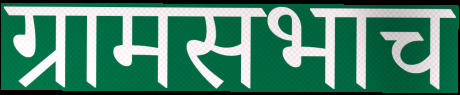
ग्रामसभाच